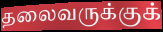
தலைவருக்குக்